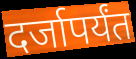
दर्जापर्यंत